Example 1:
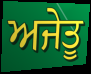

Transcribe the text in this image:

ਅਜੇਤੂ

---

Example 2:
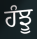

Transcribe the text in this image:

ਹੰਝੂ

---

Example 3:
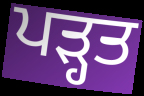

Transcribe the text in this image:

ਪਡ਼੍ਹਤ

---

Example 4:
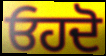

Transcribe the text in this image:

ਓਹਦੋ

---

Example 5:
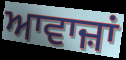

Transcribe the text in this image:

ਆਵਾਜ਼ਾਂ